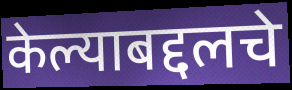
केल्याबद्दलचे